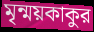
মৃন্ময়কাকুর